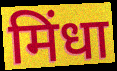
मिंधा